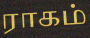
ராகம்